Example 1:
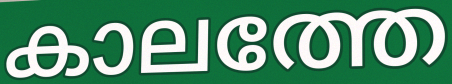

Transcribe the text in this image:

കാലത്തേ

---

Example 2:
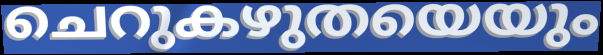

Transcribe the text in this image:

ചെറുകഴുതയെയും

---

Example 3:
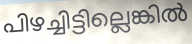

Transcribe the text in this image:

പിഴച്ചിട്ടില്ലെങ്കിൽ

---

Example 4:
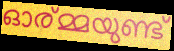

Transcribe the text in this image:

ഓര്മ്മയുണ്ട്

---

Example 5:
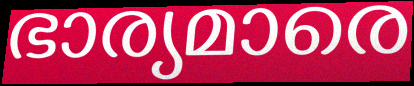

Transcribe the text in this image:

ഭാര്യമാരെ